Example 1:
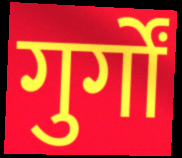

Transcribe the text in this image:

गुर्गों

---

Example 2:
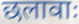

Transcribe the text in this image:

छलावाः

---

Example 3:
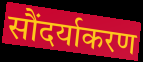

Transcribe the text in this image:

सौंदर्याकरण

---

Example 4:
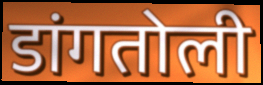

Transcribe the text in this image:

डांगतोली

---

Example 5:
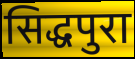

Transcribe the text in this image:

सिद्धपुरा